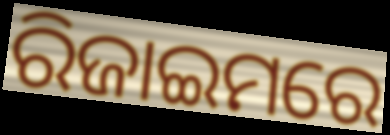
ରିଜାଇମରେ